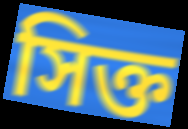
সিক্ত